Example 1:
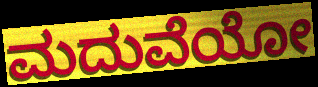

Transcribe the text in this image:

ಮದುವೆಯೋ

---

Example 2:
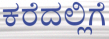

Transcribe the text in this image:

ಕರೆದಲ್ಲಿಗೆ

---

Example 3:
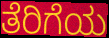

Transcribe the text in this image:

ತೆರಿಗೆಯ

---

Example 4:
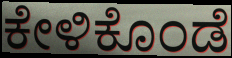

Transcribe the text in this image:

ಕೇಳಿಕೊಂಡೆ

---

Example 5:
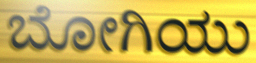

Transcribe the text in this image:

ಬೋಗಿಯು